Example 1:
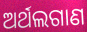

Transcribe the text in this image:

ଅର୍ଥଲଗାଣ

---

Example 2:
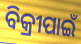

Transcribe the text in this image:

ବିକ୍ରୀପାଇଁ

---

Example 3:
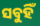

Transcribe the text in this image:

ସବୁହିଁ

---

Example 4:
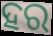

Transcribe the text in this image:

ହର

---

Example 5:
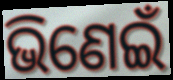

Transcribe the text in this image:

ଭିଣେଇଁ